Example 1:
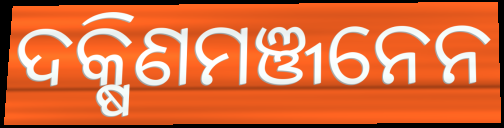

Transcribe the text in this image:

ଦକ୍ଷିଣମଞ୍ଜନେନ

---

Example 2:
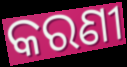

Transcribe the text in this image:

କରଣୀ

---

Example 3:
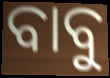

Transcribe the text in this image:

ବାବୁ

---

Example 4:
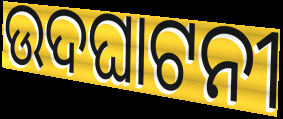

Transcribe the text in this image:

ଉଦଘାଟନୀ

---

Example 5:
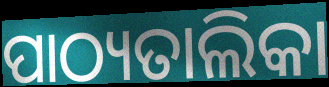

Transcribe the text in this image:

ପାଠ୍ୟତାଲିକା